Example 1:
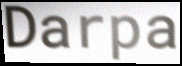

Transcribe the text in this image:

Darpa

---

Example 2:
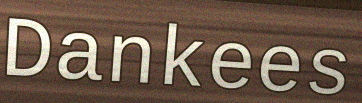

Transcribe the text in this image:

Dankees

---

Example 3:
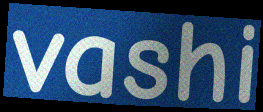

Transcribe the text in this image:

vashi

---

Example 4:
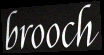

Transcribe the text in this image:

brooch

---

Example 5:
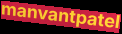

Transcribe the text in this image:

manvantpatel